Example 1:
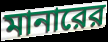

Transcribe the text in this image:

মানারের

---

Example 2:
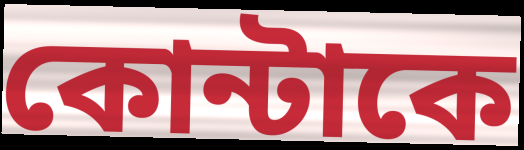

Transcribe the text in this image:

কোন্টাকে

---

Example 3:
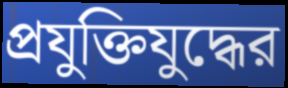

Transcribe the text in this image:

প্রযুক্তিযুদ্ধের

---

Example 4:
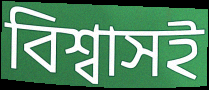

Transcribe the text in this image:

বিশ্বাসই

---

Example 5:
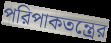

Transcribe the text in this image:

পরিপাকতন্ত্রের